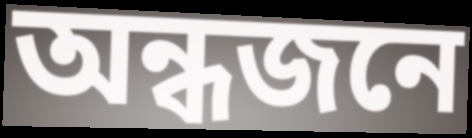
অন্ধজনে